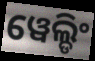
ୱେଲ୍ଡିଂ